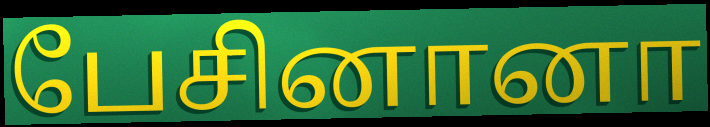
பேசினானா